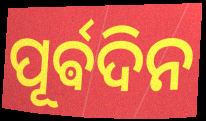
ପୂର୍ଵଦିନ